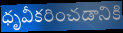
ధృవీకరించడానికి